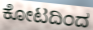
ಕೋಟದಿಂದ